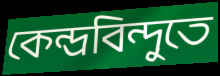
কেন্দ্রবিন্দুতে